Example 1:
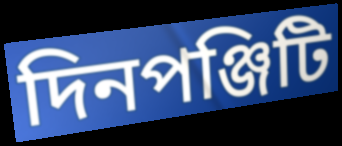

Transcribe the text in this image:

দিনপঞ্জিটি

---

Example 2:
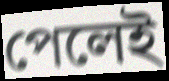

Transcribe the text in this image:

পেলেই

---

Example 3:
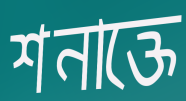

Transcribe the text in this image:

শনাক্তে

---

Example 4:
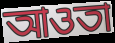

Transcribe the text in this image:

আওতা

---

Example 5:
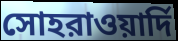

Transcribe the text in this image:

সোহরাওয়ার্দি